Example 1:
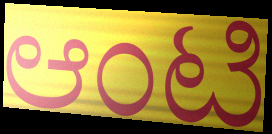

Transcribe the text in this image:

ಆಂಟಿ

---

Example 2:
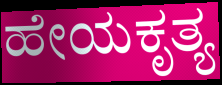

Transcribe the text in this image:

ಹೇಯಕೃತ್ಯ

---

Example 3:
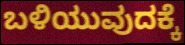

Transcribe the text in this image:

ಬಳಿಯುವುದಕ್ಕೆ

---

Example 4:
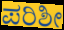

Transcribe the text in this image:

ಪರಿಶೀ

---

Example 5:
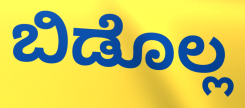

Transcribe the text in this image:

ಬಿಡೊಲ್ಲ